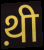
थ़ी